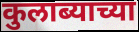
कुलाब्याच्या